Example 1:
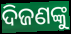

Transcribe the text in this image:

ଦିଜଣଙ୍କୁ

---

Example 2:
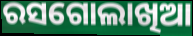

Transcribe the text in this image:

ରସଗୋଲାଖିଆ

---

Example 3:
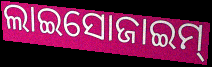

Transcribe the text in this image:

ଲାଇସୋଜାଇମ୍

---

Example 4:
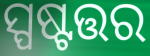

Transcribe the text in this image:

ସ୍ପଷ୍ଟତ୍ତର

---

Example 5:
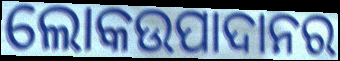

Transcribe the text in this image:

ଲୋକଉପାଦାନର